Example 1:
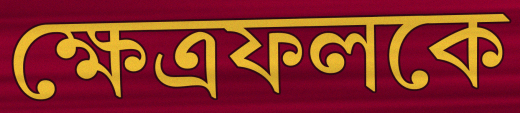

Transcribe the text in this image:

ক্ষেত্রফলকে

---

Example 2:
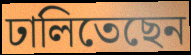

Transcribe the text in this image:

ঢালিতেছেন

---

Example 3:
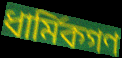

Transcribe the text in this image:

ধার্মিকগণ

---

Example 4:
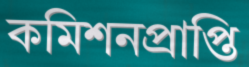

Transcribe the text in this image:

কমিশনপ্রাপ্তি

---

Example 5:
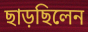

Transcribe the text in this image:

ছাড়ছিলেন